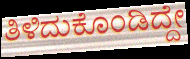
ತಿಳಿದುಕೊಂಡಿದ್ದೇ